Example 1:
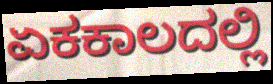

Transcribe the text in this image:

ಏಕಕಾಲದಲ್ಲಿ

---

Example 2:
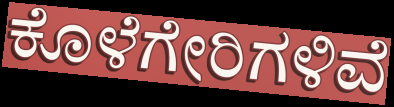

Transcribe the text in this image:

ಕೊಳೆಗೇರಿಗಳಿವೆ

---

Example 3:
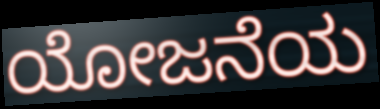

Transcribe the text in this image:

ಯೋಜನೆಯ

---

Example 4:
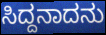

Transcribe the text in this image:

ಸಿದ್ದನಾದನು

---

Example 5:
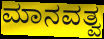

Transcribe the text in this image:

ಮಾನವತ್ವ